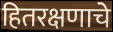
हितरक्षणाचे